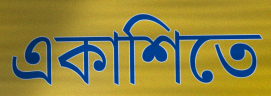
একাশিতে